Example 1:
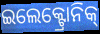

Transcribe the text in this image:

ଇଲେକ୍ଟ୍ରୋନିକ୍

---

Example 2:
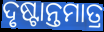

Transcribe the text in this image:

ଦୃଷ୍ଟାନ୍ତମାତ୍ର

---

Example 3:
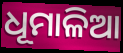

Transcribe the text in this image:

ଧୂମାଳିଆ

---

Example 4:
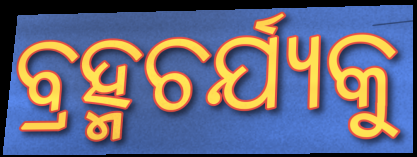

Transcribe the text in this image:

ବ୍ରହ୍ମଚର୍ଯ୍ୟକୁ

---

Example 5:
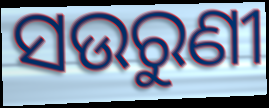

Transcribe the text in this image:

ସଉରୁଣୀ